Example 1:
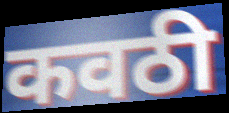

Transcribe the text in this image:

कवठी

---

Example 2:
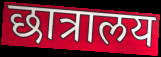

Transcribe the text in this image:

छात्रालय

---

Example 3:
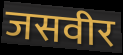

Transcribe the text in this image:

जसवीर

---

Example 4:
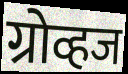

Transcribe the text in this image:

ग्रोव्हज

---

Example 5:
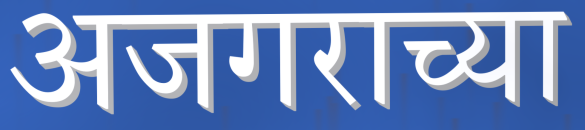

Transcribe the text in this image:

अजगराच्या